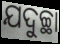
ଯଦୁଚ୍ଛା